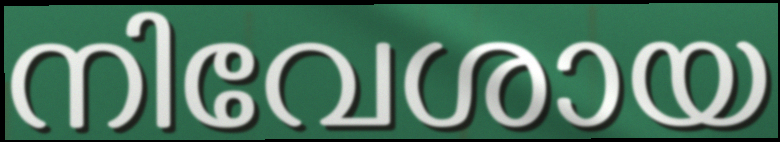
നിവേശായ